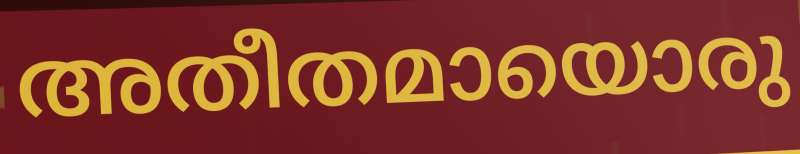
അതീതമായൊരു